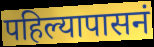
पहिल्यापासनं